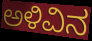
ಅಳಿವಿನ